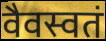
वैवस्वतं